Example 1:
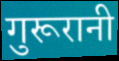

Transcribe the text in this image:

गुरूरानी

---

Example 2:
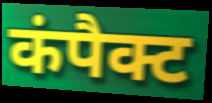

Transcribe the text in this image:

कंपैक्ट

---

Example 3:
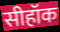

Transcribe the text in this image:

सीहॉक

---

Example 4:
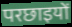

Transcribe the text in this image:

परछाइयों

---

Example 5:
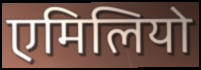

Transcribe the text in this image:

एमिलियो